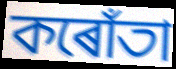
কৰোঁতা